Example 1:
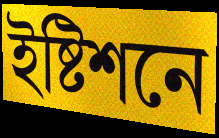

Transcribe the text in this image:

ইষ্টিশনে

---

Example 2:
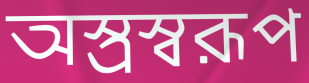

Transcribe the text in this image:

অস্ত্রস্বরূপ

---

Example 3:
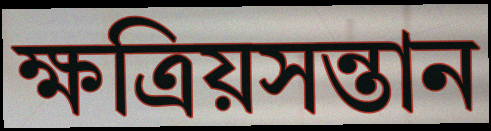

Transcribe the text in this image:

ক্ষত্রিয়সন্তান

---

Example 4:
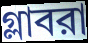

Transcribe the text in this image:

গ্লাবরা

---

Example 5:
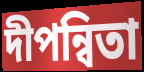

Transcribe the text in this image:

দীপন্বিতা